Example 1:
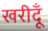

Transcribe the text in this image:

खरीदूँ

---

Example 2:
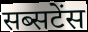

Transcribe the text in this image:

सब्सटेंस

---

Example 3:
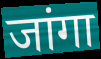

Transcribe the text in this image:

जांगा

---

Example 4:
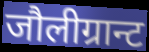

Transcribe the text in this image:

जौलीग्रान्ट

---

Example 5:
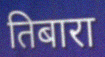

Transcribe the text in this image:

तिबारा